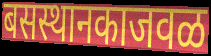
बसस्थानकाजवळ